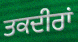
ਤਕਦੀਰਾਂ